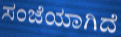
ಸಂಜೆಯಾಗಿದೆ